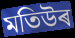
মতিউৰ